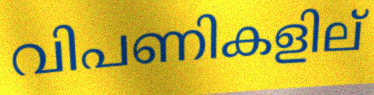
വിപണികളില്